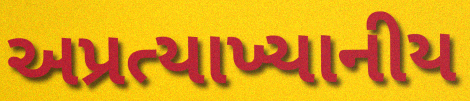
અપ્રત્યાખ્યાનીય